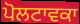
ਪੋਲਟਾਵਕਾ